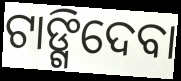
ଟାଙ୍ଗିଦେବା